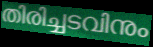
തിരിച്ചടവിനും